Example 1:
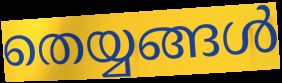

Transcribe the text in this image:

തെയ്യങ്ങൾ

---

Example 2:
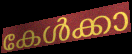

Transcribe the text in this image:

കേൾക്കാ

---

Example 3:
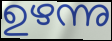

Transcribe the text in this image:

ഉഴന്നു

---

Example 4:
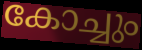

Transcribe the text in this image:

കോച്ചും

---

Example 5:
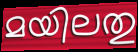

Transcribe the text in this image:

മയിലതു